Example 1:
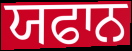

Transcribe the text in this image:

ਯਫਾਨ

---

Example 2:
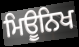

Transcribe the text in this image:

ਮਿਊਨਿਖ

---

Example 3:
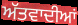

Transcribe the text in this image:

ਅੱਤਵਾਦੀਆਂ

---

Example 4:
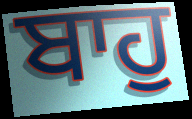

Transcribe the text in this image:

ਬਾਹੁ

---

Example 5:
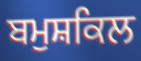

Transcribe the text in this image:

ਬਮੁਸ਼ਕਿਲ